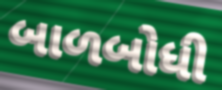
બાળબોધી